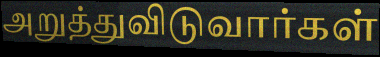
அறுத்துவிடுவார்கள்